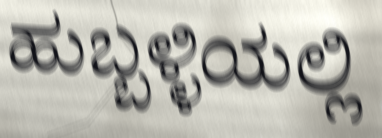
ಹುಬ್ಬಳ್ಳಿಯಲ್ಲಿ